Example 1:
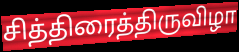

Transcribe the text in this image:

சித்திரைத்திருவிழா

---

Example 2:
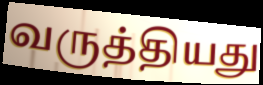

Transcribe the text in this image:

வருத்தியது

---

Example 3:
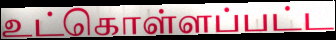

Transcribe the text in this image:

உட்கொள்ளப்பட்ட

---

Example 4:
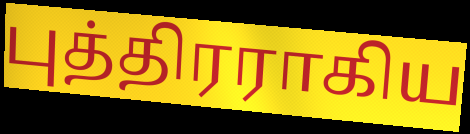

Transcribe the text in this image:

புத்திரராகிய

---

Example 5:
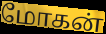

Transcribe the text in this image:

மோகன்